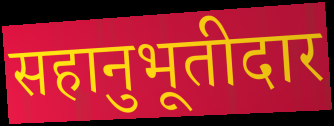
सहानुभूतीदार